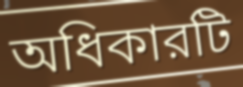
অধিকারটি